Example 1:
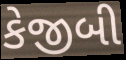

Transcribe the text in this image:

કેજીબી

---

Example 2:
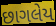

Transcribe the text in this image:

છાગલેય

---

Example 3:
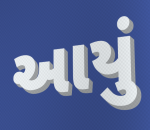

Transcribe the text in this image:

આયું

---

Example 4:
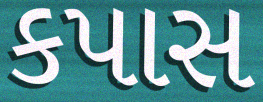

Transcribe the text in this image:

કપાસ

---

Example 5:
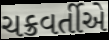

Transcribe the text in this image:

ચક્રવર્તીએ